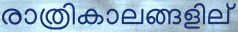
രാത്രികാലങ്ങളില്